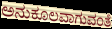
ಅನುಕೂಲವಾಗುವಂತೆ